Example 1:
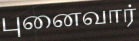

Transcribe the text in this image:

புனைவார்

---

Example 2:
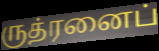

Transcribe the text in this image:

ருத்ரனைப்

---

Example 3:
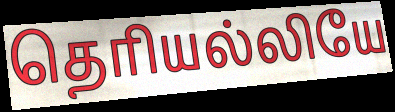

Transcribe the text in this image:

தெரியல்லியே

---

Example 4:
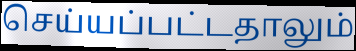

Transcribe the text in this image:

செய்யப்பட்டதாலும்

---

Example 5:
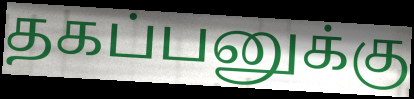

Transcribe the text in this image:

தகப்பனுக்கு